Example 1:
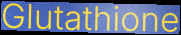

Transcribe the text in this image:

Glutathione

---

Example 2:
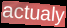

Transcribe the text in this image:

actualy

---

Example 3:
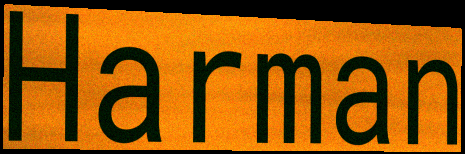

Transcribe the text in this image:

Harman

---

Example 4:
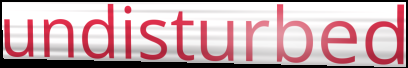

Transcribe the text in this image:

undisturbed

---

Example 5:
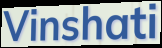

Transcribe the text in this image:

Vinshati